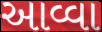
આવ્વા